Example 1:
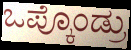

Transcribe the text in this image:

ಒಪ್ಕೊಂಡ್ರು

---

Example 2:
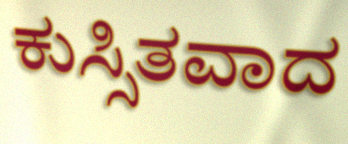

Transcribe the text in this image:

ಕುಸ್ಸಿತವಾದ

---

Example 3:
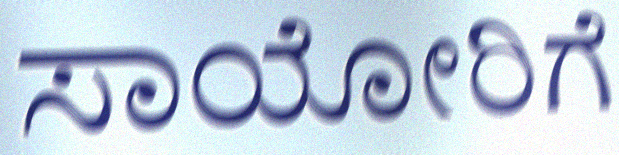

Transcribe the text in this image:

ಸಾಯೋರಿಗೆ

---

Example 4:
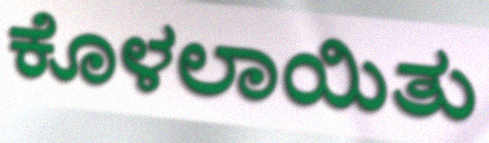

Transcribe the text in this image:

ಕೊಳಲಾಯಿತು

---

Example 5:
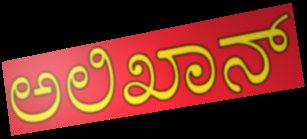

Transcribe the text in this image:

ಅಲಿಖಾನ್